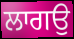
ਲਾਗਉ